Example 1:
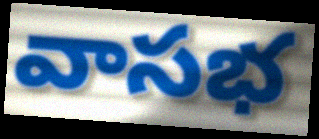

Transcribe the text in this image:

వాసభ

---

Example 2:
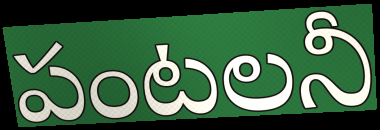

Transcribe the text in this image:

పంటలనీ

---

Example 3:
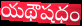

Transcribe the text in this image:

యథౌషధం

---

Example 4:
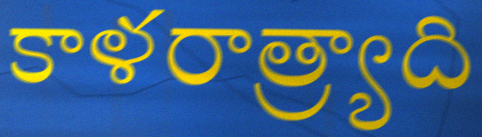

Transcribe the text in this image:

కాళరాత్ర్యాది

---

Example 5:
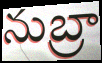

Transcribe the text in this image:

నుబ్రా